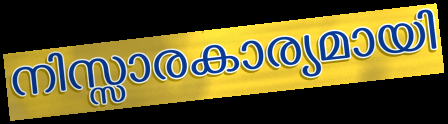
നിസ്സാരകാര്യമായി